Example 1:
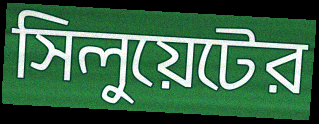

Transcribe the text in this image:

সিলুয়েটের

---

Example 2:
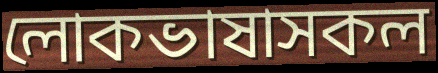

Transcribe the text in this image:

লোকভাষাসকল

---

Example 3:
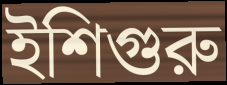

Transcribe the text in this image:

ইশিগুরু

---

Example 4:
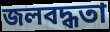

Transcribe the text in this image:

জলবদ্ধতা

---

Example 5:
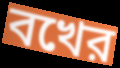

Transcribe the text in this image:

বখের